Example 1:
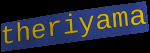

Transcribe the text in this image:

theriyama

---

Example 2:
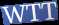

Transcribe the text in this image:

WTT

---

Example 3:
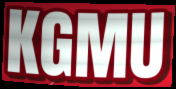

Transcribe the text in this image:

KGMU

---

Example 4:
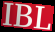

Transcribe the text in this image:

IBL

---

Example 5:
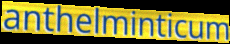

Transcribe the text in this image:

anthelminticum